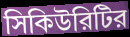
সিকিউরিটির